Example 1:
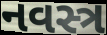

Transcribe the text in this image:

નવસ્ત્ર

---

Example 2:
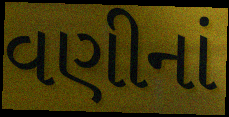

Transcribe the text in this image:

વણીનાં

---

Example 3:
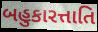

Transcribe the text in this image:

બહુકારત્તાતિ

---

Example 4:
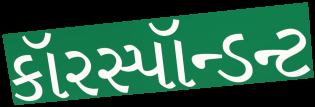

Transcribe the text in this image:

કૉરસ્પૉન્ડન્ટ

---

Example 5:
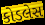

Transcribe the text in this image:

કોડલેસ